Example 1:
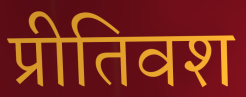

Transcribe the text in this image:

प्रीतिवश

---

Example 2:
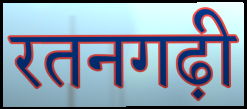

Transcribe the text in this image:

रतनगढ़ी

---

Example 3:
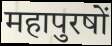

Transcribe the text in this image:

महापुरषों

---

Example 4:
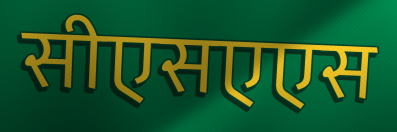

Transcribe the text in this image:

सीएसएएस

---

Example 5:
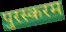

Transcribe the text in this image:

पुरस्करम